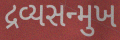
દ્રવ્યસન્મુખ